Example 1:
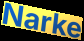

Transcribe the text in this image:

Narke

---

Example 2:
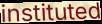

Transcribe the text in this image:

instituted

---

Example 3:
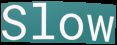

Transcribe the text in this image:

Slow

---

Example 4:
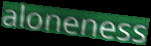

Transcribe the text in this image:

aloneness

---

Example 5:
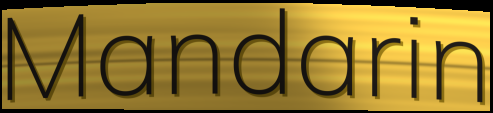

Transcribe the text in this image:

Mandarin